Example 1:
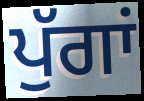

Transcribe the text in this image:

ਪੁੱਗਾਂ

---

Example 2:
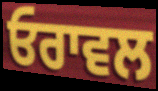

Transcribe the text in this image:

ਓਰਾਵਲ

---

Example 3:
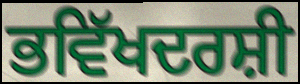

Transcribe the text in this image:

ਭਵਿੱਖਦਰਸ਼ੀ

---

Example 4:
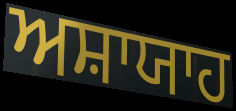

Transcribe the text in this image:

ਅਸ਼ਾਯਾਹ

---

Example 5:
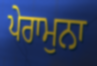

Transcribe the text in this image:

ਪੇਰਾਮੁਨਾ